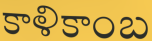
కాళికాంబ